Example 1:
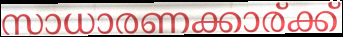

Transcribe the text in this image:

സാധാരണക്കാര്ക്ക്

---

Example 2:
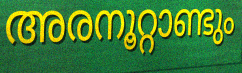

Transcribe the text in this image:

അരനൂറ്റാണ്ടും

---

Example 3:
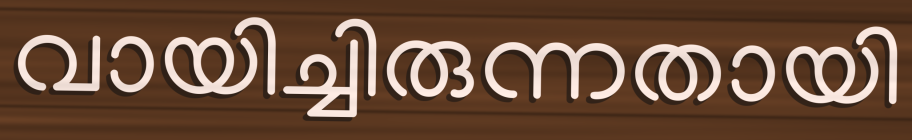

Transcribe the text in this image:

വായിച്ചിരുന്നതായി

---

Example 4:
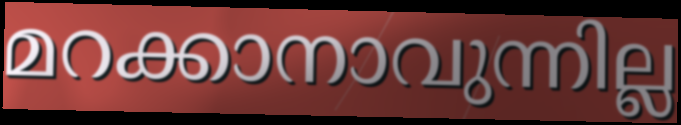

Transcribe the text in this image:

മറക്കാനാവുന്നില്ല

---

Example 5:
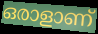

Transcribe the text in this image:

ഒരാളാണ്